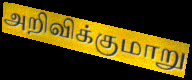
அறிவிக்குமாறு